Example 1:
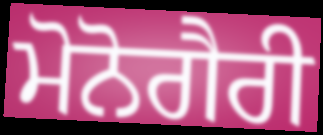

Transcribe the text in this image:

ਮੋਨੋਗੈਰੀ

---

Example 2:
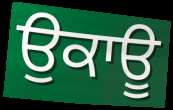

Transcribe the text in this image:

ਉਕਾਊ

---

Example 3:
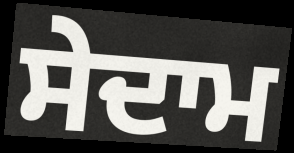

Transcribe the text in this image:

ਸੇਦਾਮ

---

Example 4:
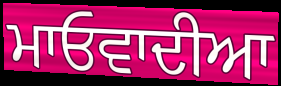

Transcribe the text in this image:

ਮਾਓਵਾਦੀਆ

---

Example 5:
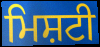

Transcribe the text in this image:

ਮਿਸ਼ਟੀ